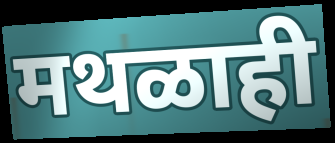
मथळाही